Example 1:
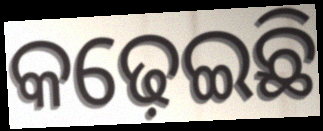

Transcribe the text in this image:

କଢ଼େଇଛି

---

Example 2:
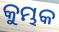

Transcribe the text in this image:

କୁମ୍ଭକ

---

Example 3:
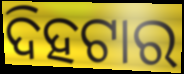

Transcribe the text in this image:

ଦିହଟାର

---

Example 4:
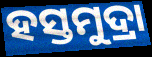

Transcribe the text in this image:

ହସ୍ତମୁଦ୍ରା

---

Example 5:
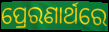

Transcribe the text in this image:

ପ୍ରେରଣାର୍ଥରେ